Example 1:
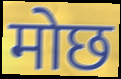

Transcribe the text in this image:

मोछ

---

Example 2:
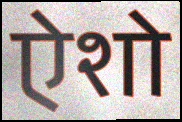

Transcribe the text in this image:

ऐशो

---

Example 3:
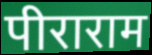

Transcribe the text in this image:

पीराराम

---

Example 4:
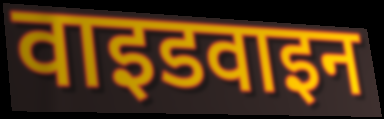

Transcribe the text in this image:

वाइडवाइन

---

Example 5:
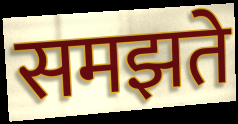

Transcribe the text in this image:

समझते